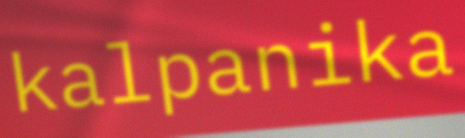
kalpanika